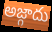
అజ్గాదు